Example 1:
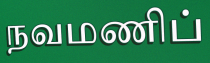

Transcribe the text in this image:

நவமணிப்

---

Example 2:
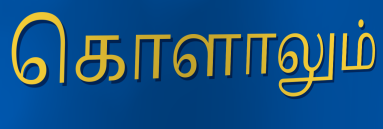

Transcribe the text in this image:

கொளாலும்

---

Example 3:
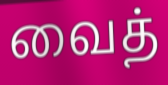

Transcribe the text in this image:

வைத்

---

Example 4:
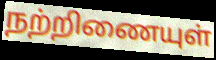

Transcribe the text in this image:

நற்றிணையுள்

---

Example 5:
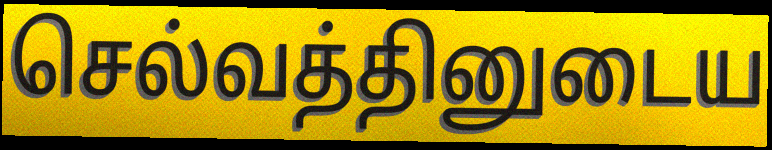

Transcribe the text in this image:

செல்வத்தினுடைய